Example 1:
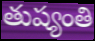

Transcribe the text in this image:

తుష్యంతి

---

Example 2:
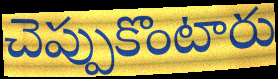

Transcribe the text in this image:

చెప్పుకొంటారు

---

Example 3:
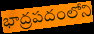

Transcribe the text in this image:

భాద్రపదంలోని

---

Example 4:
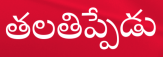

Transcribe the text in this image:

తలతిప్పేడు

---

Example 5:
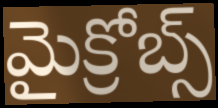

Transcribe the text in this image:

మైక్రోబ్స్